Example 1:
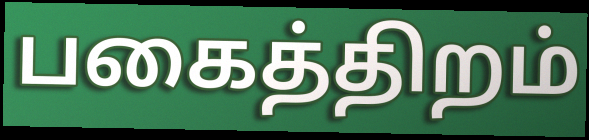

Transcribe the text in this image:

பகைத்திறம்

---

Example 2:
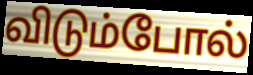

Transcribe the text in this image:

விடும்போல்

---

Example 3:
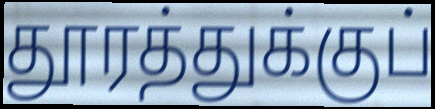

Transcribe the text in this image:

தூரத்துக்குப்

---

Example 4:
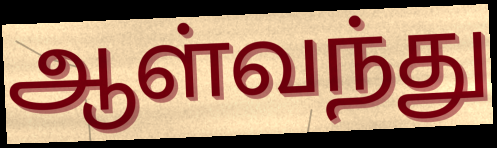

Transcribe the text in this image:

ஆள்வந்து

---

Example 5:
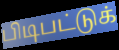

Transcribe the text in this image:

பிடிபட்டுக்